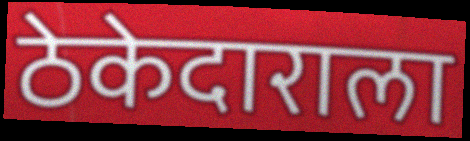
ठेकेदाराला